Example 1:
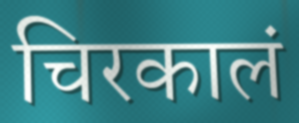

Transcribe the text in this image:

चिरकालं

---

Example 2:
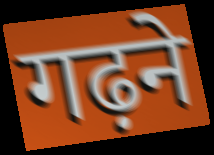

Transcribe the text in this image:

गढ़ने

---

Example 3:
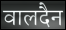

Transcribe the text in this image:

वालदैन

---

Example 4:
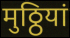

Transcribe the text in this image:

मुठ्ठियां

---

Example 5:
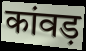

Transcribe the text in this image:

कांवड़